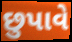
છુપાવે